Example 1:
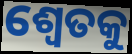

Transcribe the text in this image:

ଶ୍ଵେତକୁ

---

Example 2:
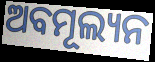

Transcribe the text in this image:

ଅବମୂଲ୍ୟନ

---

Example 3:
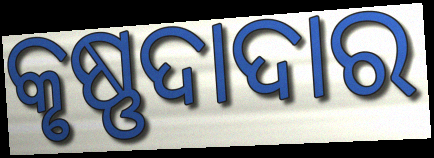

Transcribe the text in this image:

କୃଷ୍ଣଦାଦାର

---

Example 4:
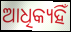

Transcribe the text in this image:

ଆଧିକ୍ୟହିଁ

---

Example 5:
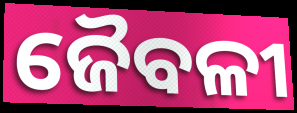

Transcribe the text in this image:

ଜୈବଳୀ